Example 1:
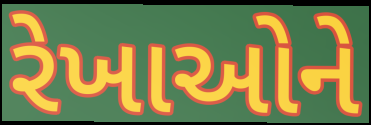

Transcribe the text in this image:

રેખાઓને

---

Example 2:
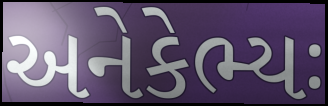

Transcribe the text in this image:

અનેકેભ્યઃ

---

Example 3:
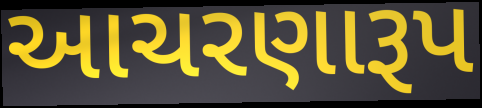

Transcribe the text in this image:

આચરણારૂપ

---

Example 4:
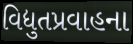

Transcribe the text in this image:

વિદ્યુતપ્રવાહના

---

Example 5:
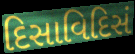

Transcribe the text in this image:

દિસાવિદિસં